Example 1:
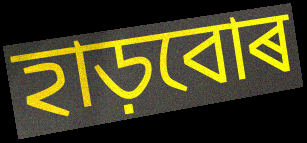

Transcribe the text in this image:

হাড়বোৰ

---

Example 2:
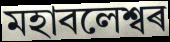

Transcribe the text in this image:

মহাবলেশ্বৰ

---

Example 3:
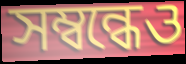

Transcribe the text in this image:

সম্বন্ধেও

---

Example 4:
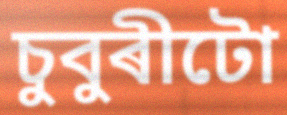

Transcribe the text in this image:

চুবুৰীটো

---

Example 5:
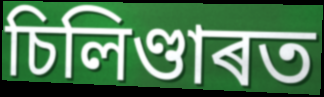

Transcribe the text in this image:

চিলিণ্ডাৰত